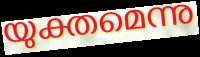
യുക്തമെന്നു